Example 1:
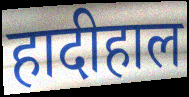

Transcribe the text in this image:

हादीहाल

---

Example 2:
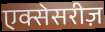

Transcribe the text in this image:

एक्सेसरीज़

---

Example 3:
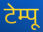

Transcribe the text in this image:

टेम्पू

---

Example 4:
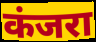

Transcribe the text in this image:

कंजरा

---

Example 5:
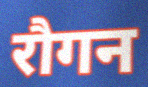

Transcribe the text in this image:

रौगन